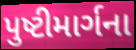
પુષ્ટીમાર્ગના